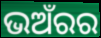
ଭଅଁରର